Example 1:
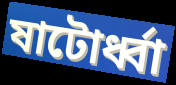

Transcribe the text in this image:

ষাটোর্ধ্বা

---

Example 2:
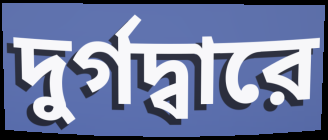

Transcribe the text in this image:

দুর্গদ্বারে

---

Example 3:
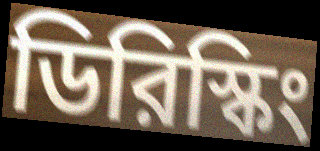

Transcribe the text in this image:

ডিরিস্কিং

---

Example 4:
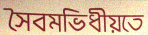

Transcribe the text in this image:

সৈবমভিধীয়তে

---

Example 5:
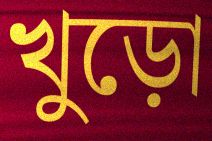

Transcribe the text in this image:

খুড়ো